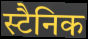
स्टैनिक